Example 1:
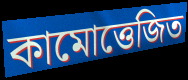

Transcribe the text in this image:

কামোত্তেজিত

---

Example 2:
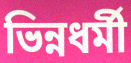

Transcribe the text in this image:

ভিন্নধর্মী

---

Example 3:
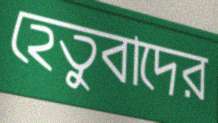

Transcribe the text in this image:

হেতুবাদের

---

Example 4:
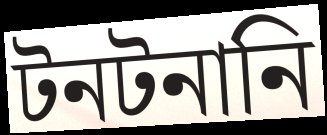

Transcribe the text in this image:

টনটনানি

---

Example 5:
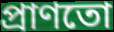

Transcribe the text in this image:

প্রাণতো